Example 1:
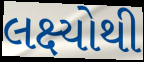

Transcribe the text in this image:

લક્ષ્યોથી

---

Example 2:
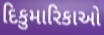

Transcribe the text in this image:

દિકુમારિકાઓ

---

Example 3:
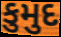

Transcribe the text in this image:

કુમુદ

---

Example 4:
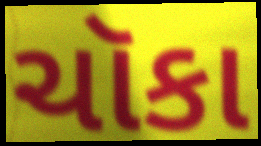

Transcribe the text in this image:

ચૉકા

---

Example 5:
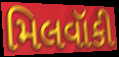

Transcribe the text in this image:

મિલવૉકી